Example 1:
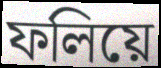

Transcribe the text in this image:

ফলিয়ে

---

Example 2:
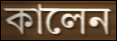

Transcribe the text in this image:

কালেন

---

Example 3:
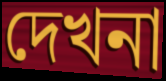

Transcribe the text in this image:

দেখনা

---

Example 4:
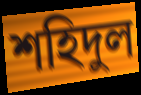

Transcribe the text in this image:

শহিদুল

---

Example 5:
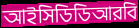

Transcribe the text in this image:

আইসিডিডিআরবি